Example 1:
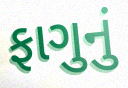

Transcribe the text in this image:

ફાગુનું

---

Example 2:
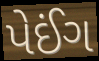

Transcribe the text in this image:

પેઈંગ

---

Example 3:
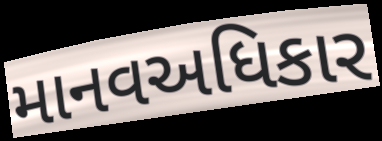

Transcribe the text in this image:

માનવઅધિકાર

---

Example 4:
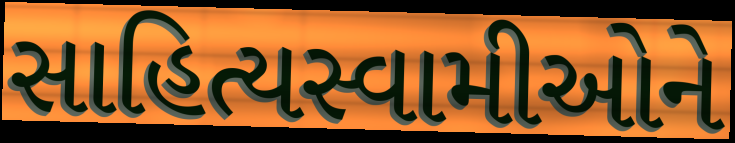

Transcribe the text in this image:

સાહિત્યસ્વામીઓને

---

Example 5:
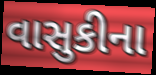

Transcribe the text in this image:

વાસુકીના